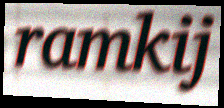
ramkij